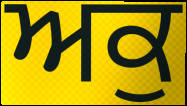
ਅਕੁ